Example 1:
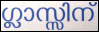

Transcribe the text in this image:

ഗ്ലാസ്സിന്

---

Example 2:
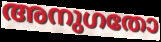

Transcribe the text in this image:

അനുഗതോ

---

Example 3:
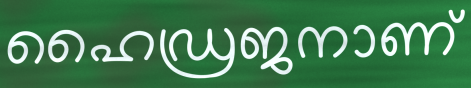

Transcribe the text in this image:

ഹൈഡ്രജനാണ്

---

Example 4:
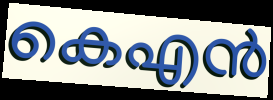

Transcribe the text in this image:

കെഎൻ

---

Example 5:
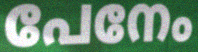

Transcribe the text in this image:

പേനേം